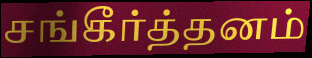
சங்கீர்த்தனம்